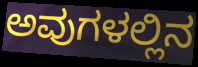
ಅವುಗಳಲ್ಲಿನ